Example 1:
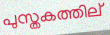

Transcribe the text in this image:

പുസ്തകത്തില്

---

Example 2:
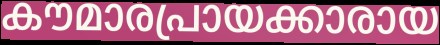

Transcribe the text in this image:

കൗമാരപ്രായക്കാരായ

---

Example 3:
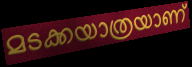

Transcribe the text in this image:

മടക്കയാത്രയാണ്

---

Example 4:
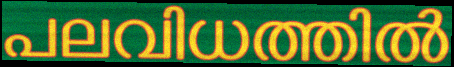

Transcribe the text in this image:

പലവിധത്തിൽ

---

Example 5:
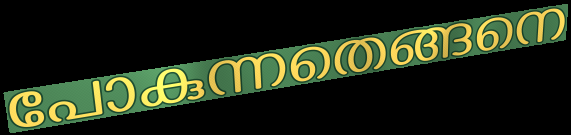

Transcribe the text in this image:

പോകുന്നതെങ്ങനെ